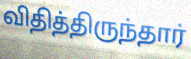
விதித்திருந்தார்